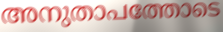
അനുതാപത്തോടെ